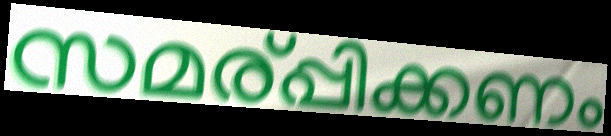
സമര്പ്പിക്കണം